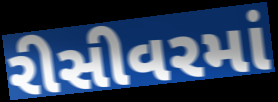
રીસીવરમાં